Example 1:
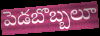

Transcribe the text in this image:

పెడబొబ్బలూ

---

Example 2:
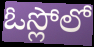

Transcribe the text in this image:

ఓస్లోలో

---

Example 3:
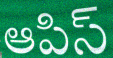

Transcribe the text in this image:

ఆపిస్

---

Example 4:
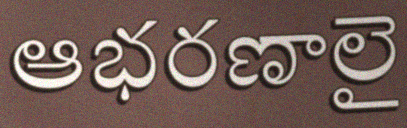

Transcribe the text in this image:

ఆభరణాలై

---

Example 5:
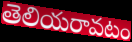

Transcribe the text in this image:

తెలియరావటం